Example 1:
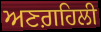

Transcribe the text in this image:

ਅਣਗ਼ਹਿਲੀ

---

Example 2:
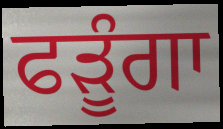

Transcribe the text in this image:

ਫੜੂੰਗਾ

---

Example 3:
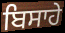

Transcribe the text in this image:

ਬਿਸਾਹੇ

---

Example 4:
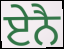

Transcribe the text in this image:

ਏਨੈ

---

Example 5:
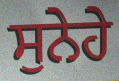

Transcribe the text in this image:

ਸੁਨੇਹੇ